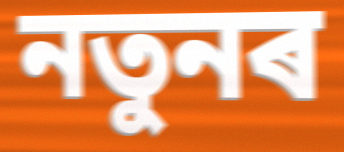
নতুনৰ